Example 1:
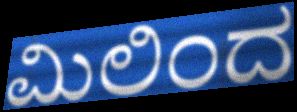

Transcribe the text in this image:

ಮಿಲಿಂದ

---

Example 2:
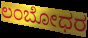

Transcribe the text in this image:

ಲಂಬೋಧರ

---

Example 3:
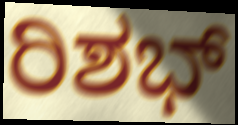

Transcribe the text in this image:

ರಿಶಭ್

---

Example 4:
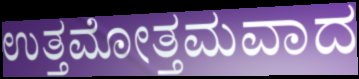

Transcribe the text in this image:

ಉತ್ತಮೋತ್ತಮವಾದ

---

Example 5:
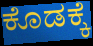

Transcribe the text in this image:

ಕೊಡಕ್ಕೆ